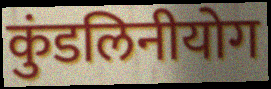
कुंडलिनीयोग